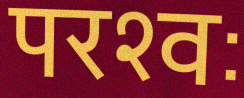
परश्वः